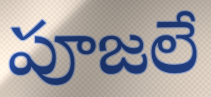
పూజలే